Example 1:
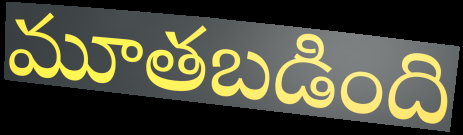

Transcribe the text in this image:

మూతబడింది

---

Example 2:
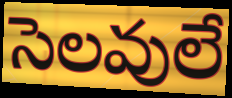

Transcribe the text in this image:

సెలవులే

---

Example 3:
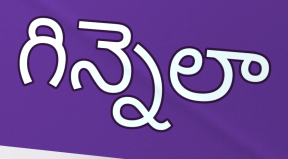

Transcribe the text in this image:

గిన్నెలా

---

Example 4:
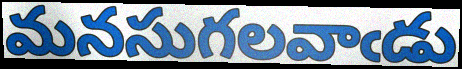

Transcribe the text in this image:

మనసుగలవాఁడు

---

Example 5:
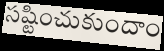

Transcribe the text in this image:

సష్టించుకుందాం